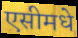
एसीमधे